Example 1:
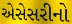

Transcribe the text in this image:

એસેસરીનો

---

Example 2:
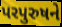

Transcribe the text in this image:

પરપુરુષને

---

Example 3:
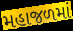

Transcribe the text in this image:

મહાજળમાં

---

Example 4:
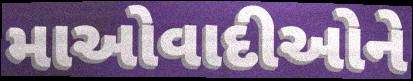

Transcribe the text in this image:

માઓવાદીઓને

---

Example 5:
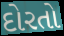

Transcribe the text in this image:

દોરતો